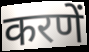
करणें